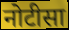
नोटीसा